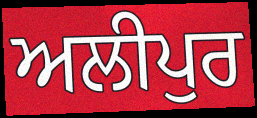
ਅਲੀਪੁਰ